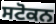
ਸਟੋਕਨ